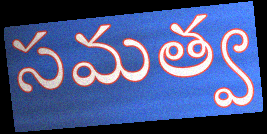
సమత్వ